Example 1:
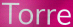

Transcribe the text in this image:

Torre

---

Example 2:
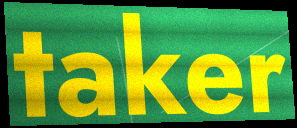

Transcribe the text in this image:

taker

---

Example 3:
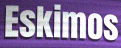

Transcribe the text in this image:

Eskimos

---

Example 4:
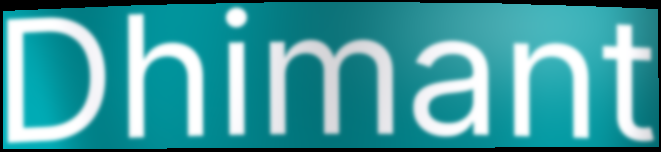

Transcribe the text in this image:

Dhimant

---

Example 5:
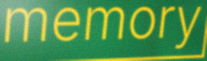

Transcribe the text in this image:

memory